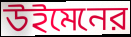
উইমেনের